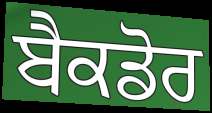
ਬੈਕਡੋਰ